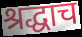
श्रद्धाच